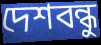
দেশবন্ধু